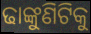
ଢାଙ୍କୁଣିଟିକୁ